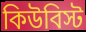
কিউবিস্ট